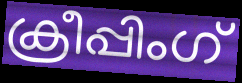
ക്രീപ്പിംഗ്